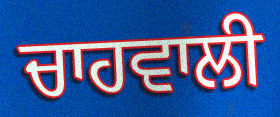
ਚਾਹਵਾਲੀ